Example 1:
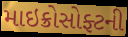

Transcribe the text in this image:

માઇક્રોસોફ્ટની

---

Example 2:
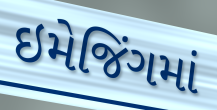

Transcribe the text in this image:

ઇમેજિંગમાં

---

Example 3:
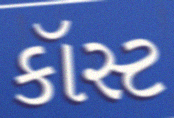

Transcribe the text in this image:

કૉસ્ટ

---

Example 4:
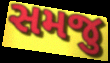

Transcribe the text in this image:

સમજુ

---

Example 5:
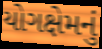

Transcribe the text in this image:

યોગક્ષેમનું